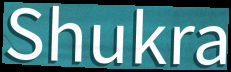
Shukra